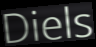
Diels